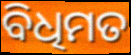
ବିଧିମତ